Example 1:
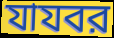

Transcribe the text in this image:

যাযবর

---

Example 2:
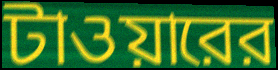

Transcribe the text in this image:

টাওয়ারের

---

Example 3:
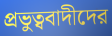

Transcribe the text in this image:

প্রভুত্ববাদীদের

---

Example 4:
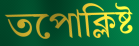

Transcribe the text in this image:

তপোক্লিষ্ট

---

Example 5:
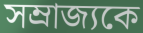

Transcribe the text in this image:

সম্রাজ্যকে